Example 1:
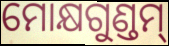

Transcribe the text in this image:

ମୋକ୍ଷଗୁଣ୍ଡମ୍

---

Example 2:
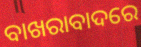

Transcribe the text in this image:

ବାଖରାବାଦରେ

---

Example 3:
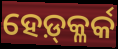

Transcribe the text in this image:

ହେଡ଼୍‍କ୍ଳର୍କ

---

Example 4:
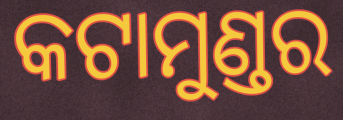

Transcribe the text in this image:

କଟାମୁଣ୍ଡର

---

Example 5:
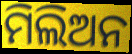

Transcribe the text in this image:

ମିଲିଅନ